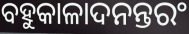
ବହୁକାଳାଦନନ୍ତରଂ